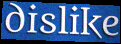
dislike